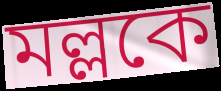
মল্লকে